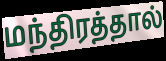
மந்திரத்தால்